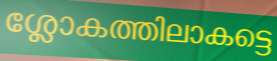
ശ്ലോകത്തിലാകട്ടെ